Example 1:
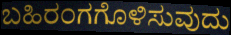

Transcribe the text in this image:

ಬಹಿರಂಗಗೊಳಿಸುವುದು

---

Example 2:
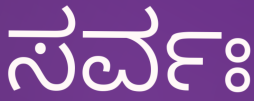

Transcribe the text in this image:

ಸರ್ವಃ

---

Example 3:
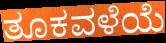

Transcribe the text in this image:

ತೂಕವಳೆಯೆ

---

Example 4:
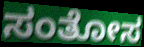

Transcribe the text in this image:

ಸಂತೋಸ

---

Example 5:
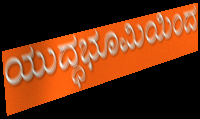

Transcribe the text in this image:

ಯುದ್ಧಭೂಮಿಯಿಂದ